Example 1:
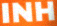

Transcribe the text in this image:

INH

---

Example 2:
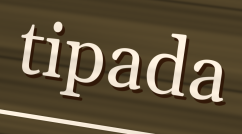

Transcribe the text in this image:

tipada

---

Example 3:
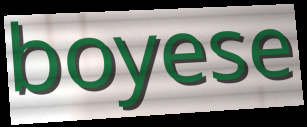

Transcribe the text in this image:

boyese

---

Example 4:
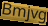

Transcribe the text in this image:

Bmjvg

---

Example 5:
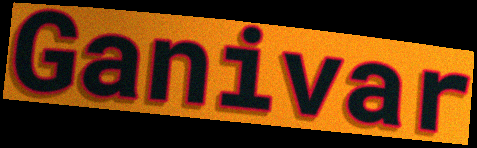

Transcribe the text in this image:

Ganivar